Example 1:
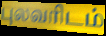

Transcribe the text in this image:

புலவரிடம்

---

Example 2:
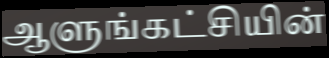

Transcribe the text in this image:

ஆளுங்கட்சியின்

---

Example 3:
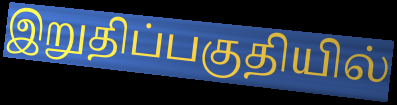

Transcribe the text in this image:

இறுதிப்பகுதியில்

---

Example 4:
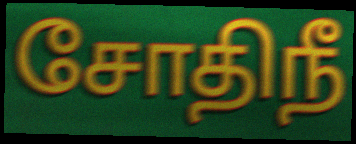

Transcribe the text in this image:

சோதிநீ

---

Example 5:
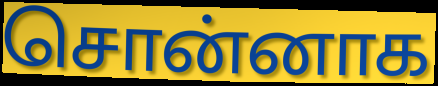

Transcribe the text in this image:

சொன்னாக